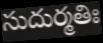
సుదుర్మతిః